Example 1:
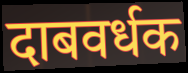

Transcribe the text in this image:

दाबवर्धक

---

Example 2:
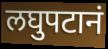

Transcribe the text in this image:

लघुपटानं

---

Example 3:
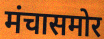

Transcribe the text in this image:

मंचासमोर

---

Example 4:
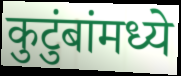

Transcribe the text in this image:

कुटुंबांमध्ये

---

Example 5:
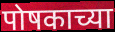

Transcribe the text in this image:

पोषकाच्या